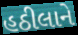
હઠીલાને